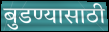
बुडण्यासाठी